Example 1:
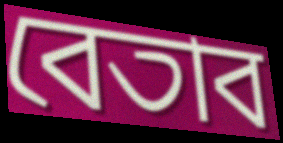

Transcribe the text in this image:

বেতাব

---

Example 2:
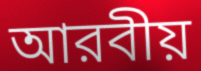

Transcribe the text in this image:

আরবীয়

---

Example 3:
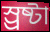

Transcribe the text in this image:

স্র্রষ্টা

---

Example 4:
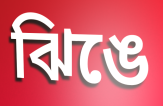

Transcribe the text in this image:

ঝিঙে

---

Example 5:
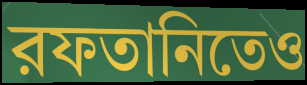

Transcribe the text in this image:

রফতানিতেও